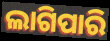
ଲାଗିପାରି